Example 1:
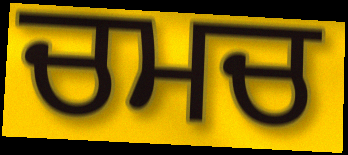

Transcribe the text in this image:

ਚਮਚ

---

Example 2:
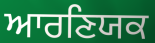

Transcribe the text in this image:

ਆਰਣਿਯਕ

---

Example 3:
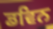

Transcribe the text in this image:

ਡਵਿਨ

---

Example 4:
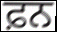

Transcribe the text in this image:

ਫ਼ਨ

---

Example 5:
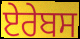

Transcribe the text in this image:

ਏਰੇਬਸ